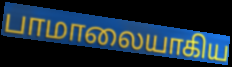
பாமாலையாகிய